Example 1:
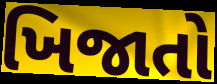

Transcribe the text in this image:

ખિજાતો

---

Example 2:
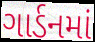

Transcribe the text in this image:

ગાર્ડનમાં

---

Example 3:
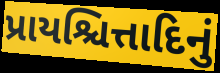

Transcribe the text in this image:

પ્રાયશ્ચિત્તાદિનું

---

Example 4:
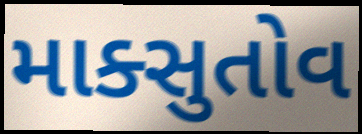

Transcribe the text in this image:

માક્સુતોવ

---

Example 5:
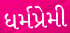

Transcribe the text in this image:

ધર્મપ્રેમી